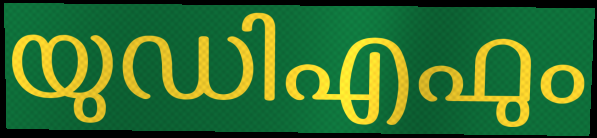
യുഡിഎഫും